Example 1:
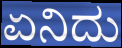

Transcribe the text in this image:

ಏನಿದು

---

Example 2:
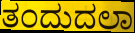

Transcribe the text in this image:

ತಂದುದಲಾ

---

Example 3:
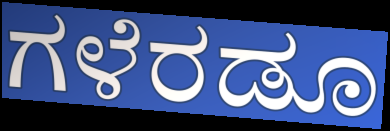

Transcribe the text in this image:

ಗಳೆರಡೂ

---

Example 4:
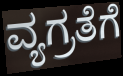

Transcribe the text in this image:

ವ್ಯಗ್ರತೆಗೆ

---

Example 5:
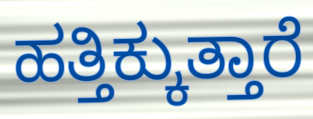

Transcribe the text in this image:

ಹತ್ತಿಕ್ಕುತ್ತಾರೆ